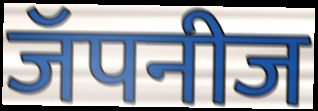
जॅपनीज